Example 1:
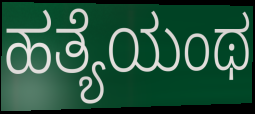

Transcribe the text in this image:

ಹತ್ಯೆಯಂಥ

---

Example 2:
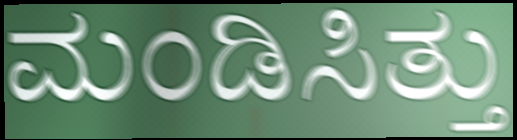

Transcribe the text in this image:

ಮಂಡಿಸಿತ್ತು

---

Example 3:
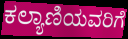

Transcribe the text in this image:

ಕಲ್ಯಾಣಿಯವರಿಗೆ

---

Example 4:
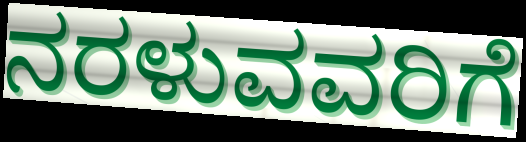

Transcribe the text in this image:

ನರಳುವವರಿಗೆ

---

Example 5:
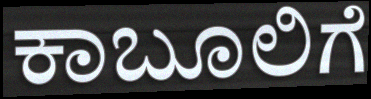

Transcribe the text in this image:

ಕಾಬೂಲಿಗೆ